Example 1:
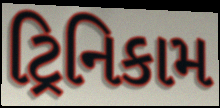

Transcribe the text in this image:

ટ્રિનિકામ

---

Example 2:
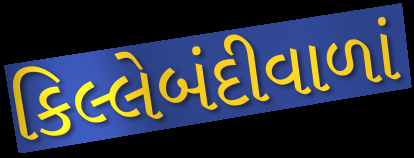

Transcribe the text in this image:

કિલ્લેબંદીવાળાં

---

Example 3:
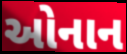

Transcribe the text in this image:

ઓનાન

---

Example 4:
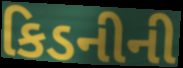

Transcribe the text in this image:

કિડનીની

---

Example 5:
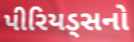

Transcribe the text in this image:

પીરિયડ્સનો